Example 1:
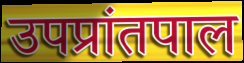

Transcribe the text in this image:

उपप्रांतपाल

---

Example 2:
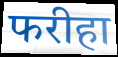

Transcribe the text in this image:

फरीहा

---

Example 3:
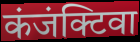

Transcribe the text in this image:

कंजंक्टिवा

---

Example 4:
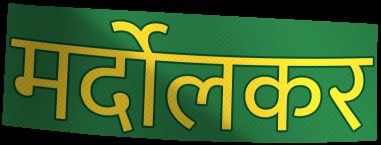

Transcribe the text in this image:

मर्दोलकर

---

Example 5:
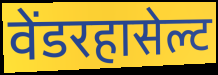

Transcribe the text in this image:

वेंडरहासेल्ट